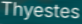
Thyestes